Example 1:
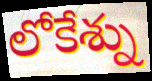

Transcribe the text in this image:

లోకేశ్ను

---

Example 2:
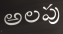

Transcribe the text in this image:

అలపు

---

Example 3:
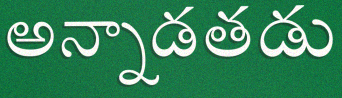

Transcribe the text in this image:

అన్నాడతడు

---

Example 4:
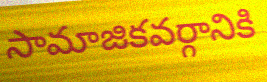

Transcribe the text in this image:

సామాజికవర్గానికి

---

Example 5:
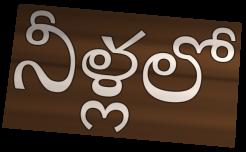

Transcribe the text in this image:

నీళ్లలో